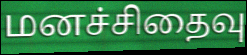
மனச்சிதைவு